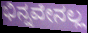
ಭಿನ್ನವೇನಲ್ಲ